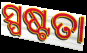
ସ୍ପଷ୍ଟତା